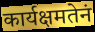
कार्यक्षमतेनं